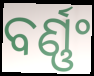
ବର୍ଣ୍ଣଂ